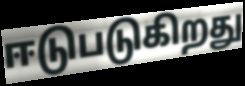
ஈடுபடுகிறது